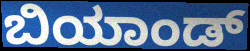
ಬಿಯಾಂಡ್